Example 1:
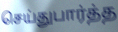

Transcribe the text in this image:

செய்துபார்த்த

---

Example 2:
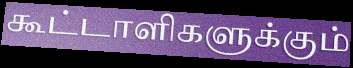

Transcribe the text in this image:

கூட்டாளிகளுக்கும்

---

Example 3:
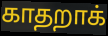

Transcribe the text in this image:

காதறாக்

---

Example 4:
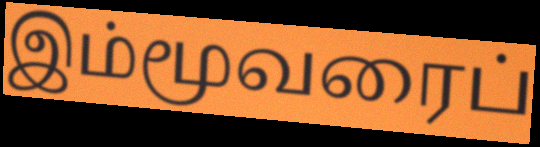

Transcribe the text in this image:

இம்மூவரைப்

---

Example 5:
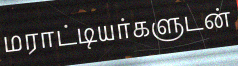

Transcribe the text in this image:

மராட்டியர்களுடன்